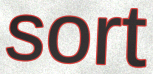
sort